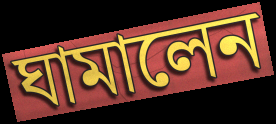
ঘামালেন